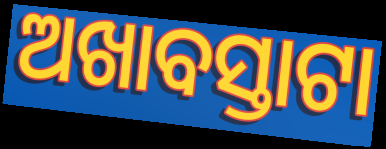
ଅଖାବସ୍ତାଟା